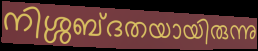
നിശ്ശബ്ദതയായിരുന്നു